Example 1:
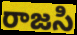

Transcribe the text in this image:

రాజసి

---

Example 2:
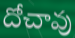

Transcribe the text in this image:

దోచావు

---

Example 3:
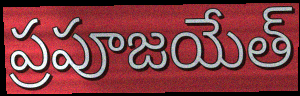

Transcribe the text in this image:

ప్రపూజయేత్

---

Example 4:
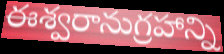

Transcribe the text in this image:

ఈశ్వరానుగ్రహాన్ని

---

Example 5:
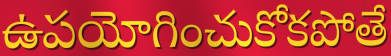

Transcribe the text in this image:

ఉపయోగించుకోకపోతే